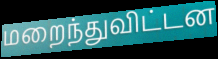
மறைந்துவிட்டன